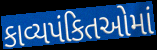
કાવ્યપંકિતઓમાં